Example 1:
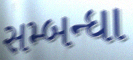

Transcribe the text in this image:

સમ્બન્ધા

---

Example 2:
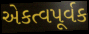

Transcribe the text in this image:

એકત્વપૂર્વક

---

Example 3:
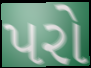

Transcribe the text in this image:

પરો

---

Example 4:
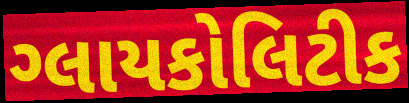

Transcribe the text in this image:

ગ્લાયકોલિટીક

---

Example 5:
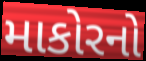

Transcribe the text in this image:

માકોરનો